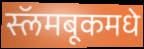
स्लॅमबूकमधे